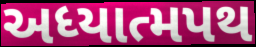
અધ્યાત્મપથ